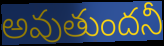
అవుతుందనీ